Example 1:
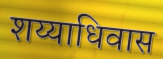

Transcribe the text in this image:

शय्याधिवास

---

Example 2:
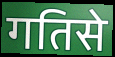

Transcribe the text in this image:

गतिसे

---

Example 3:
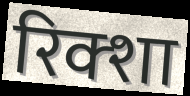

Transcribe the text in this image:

रिक्‍शा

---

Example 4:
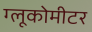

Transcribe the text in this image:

ग्लूकोमीटर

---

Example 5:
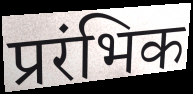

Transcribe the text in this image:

प्ररंभिक